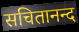
सचितानन्द